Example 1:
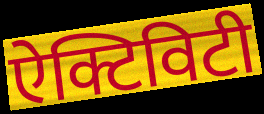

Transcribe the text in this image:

ऐक्टिविटी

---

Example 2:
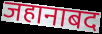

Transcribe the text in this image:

जहानाबद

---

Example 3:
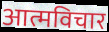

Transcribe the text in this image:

आत्मविचार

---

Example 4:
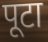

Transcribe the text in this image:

पूटा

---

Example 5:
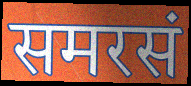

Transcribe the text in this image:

समरसं